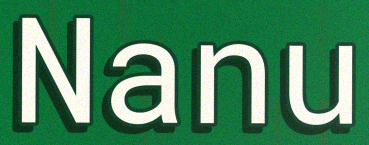
Nanu